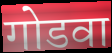
गोडवा